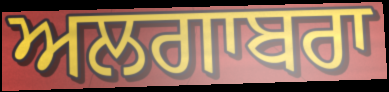
ਅਲਗਾਬਰਾ